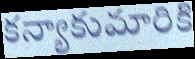
కన్యాకుమారికి